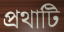
প্রথাটি